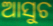
ଆସୁଚ